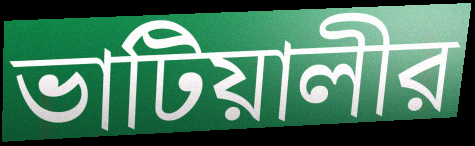
ভাটিয়ালীর